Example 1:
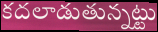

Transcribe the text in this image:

కదలాడుతున్నట్టు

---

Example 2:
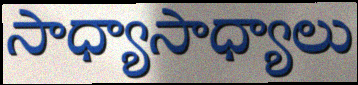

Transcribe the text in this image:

సాధ్యాసాధ్యాలు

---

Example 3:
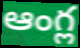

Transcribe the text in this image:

ఆంగ్ల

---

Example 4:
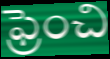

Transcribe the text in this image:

ఫ్రెంచి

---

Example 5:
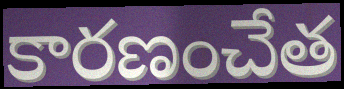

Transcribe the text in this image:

కారణంచేత